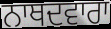
ਨਾਥਦਵਾਰਾ